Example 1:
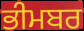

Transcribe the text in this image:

ਭੀਮਬਰ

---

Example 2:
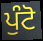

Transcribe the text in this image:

ਪੁੰਟੋ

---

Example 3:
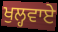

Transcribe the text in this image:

ਖੁਲ੍ਹਵਾਏ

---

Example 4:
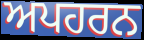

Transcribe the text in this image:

ਅਪਹਰਨ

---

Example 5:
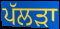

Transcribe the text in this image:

ਪੱਲੜਾ